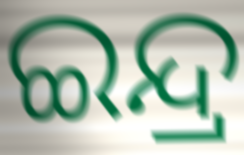
ଇନ୍ଦ୍ର